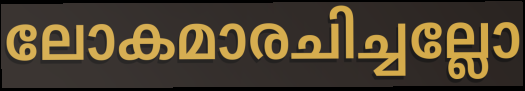
ലോകമാരചിച്ചല്ലോ